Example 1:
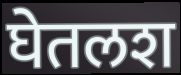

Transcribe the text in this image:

घेतलश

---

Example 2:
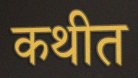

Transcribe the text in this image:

कथीत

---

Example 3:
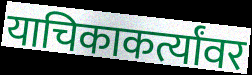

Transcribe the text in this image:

याचिकाकर्त्यांवर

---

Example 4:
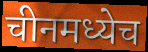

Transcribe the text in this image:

चीनमध्येच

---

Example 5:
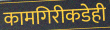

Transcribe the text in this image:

कामगिरीकडेही